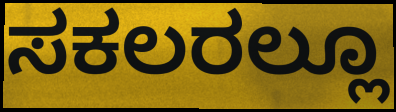
ಸಕಲರಲ್ಲೂ